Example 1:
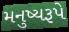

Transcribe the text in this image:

મનુષ્યરૂપે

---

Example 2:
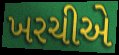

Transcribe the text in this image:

ખરચીએ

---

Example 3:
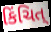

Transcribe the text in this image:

કિંચિત્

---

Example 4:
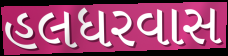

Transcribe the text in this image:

હલધરવાસ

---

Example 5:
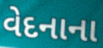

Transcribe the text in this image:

વેદનાના